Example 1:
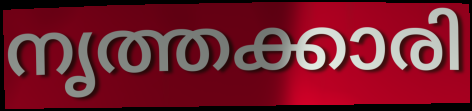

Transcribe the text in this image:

നൃത്തക്കാരി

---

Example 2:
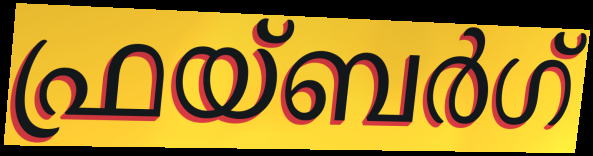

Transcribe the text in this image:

ഫ്രയ്ബർഗ്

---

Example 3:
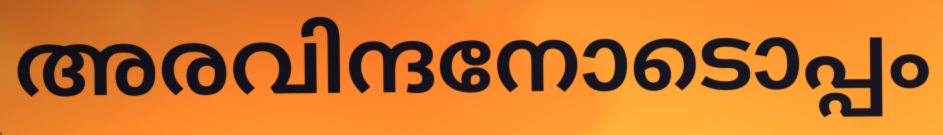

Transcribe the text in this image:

അരവിന്ദനോടൊപ്പം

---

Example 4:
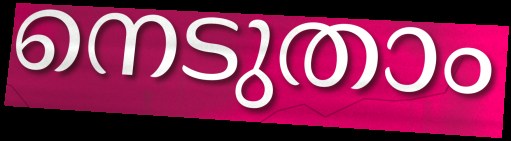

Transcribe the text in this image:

നെടുതാം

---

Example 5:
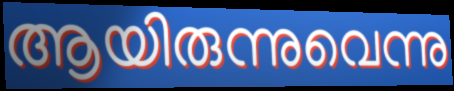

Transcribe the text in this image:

ആയിരുന്നുവെന്നു